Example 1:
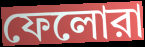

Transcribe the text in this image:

ফেলোরা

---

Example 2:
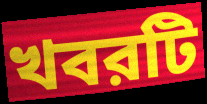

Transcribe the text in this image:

খবরটি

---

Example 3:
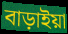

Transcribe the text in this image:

বাড়াইয়া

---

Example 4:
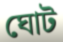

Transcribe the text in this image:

ঘোট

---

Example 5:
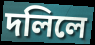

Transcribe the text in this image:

দলিলে